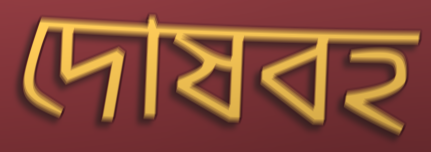
দোষবহ